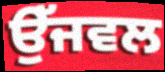
ਉੱਜਵਲ